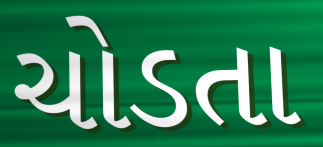
ચોડતા